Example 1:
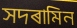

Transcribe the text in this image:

সদৰামিন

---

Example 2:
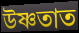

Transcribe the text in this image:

উষ্ণতাত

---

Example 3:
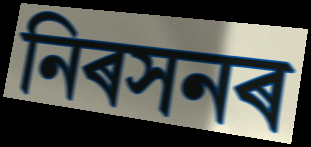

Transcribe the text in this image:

নিৰসনৰ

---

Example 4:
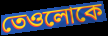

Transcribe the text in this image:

তেওলোকে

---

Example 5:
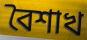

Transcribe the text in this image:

বৈশাখ